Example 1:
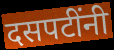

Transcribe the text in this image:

दसपटींनी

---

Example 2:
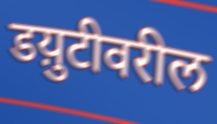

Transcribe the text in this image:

डय़ुटीवरील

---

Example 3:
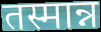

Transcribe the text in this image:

तस्मान्न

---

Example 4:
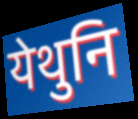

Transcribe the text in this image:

येथुनि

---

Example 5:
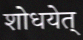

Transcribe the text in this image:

शोधयेत्